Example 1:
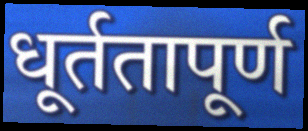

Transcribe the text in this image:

धूर्ततापूर्ण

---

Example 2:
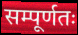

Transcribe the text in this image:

सम्पूर्णतः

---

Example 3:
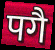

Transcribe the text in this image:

पगै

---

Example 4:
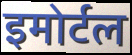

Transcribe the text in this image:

इमोर्टल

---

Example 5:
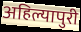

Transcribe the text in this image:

अहिल्यापुरी